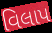
વિલાપ